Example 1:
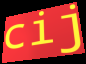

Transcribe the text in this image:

cij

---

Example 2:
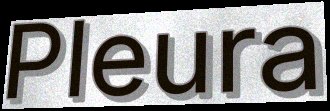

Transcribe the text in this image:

Pleura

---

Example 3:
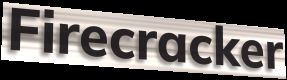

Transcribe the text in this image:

Firecracker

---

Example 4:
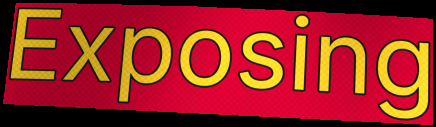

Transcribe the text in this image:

Exposing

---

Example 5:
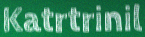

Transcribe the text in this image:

Katrtrinil